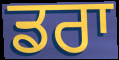
ਡਰਾ